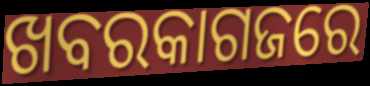
ଖବରକାଗଜରେ